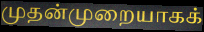
முதன்முறையாகக்